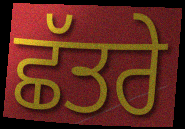
ਛੱਤਰੇ